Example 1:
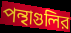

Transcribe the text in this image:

পন্থাগুলির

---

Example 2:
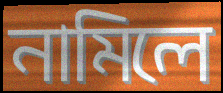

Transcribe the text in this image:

নামিলে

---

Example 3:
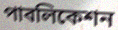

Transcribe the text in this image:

পাবলিকেশন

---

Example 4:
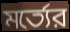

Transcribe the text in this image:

মর্ত্যের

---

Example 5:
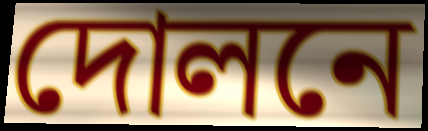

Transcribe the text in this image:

দোলনে